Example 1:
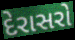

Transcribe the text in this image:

દેરાસરો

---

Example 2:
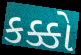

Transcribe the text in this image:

કક્કો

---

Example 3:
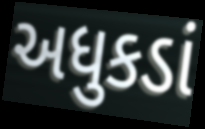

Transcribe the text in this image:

અધુકડાં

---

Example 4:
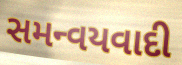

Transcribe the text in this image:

સમન્વયવાદી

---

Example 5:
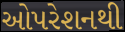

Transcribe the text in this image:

ઓપરેશનથી